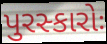
પુરસ્કારોઃ